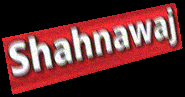
Shahnawaj